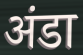
अंडा